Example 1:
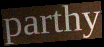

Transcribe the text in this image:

parthy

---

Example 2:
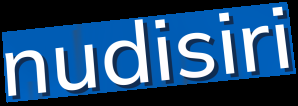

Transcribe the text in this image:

nudisiri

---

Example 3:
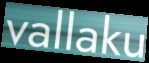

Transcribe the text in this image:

vallaku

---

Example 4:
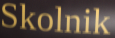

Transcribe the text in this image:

Skolnik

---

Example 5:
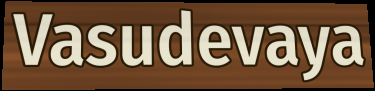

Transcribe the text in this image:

Vasudevaya